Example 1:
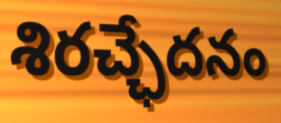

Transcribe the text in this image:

శిరచ్ఛేదనం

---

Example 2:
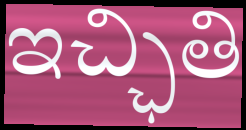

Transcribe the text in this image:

ఇచ్ఛితి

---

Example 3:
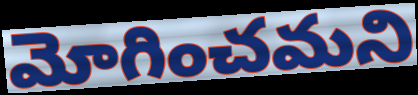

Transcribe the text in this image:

మోగించమని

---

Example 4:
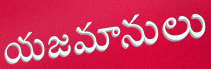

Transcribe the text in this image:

యజమానులు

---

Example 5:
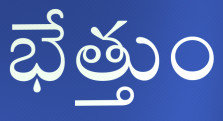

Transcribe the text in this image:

భేత్తుం